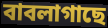
বাবলাগাছে